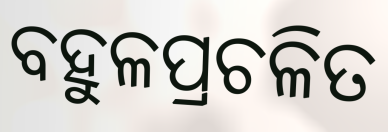
ବହୁଳପ୍ରଚଳିତ